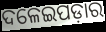
ଦଳେଇପଡ଼ାର